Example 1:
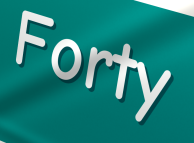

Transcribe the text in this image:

Forty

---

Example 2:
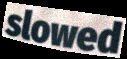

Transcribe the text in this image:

slowed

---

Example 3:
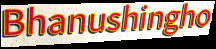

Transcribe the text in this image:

Bhanushingho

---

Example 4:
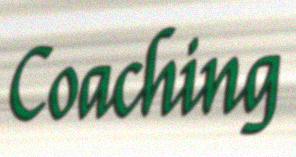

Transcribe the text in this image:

Coaching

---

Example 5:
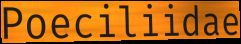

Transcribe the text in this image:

Poeciliidae